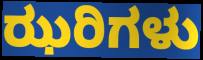
ಝರಿಗಳು